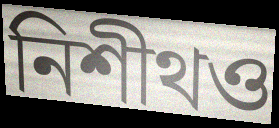
নিশীথও